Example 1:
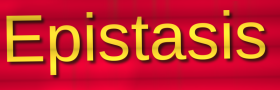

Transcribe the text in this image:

Epistasis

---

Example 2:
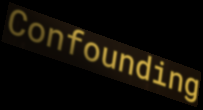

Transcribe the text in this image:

Confounding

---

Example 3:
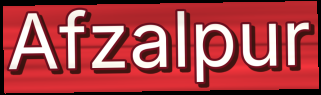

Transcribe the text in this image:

Afzalpur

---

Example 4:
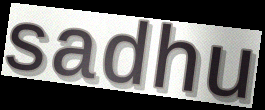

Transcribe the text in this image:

sadhu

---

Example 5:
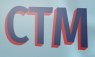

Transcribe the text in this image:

CTM